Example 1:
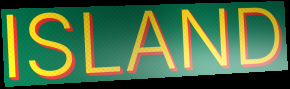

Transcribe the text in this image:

ISLAND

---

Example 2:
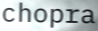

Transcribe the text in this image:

chopra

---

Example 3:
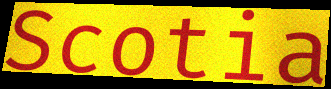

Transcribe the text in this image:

Scotia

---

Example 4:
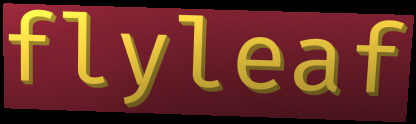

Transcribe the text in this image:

flyleaf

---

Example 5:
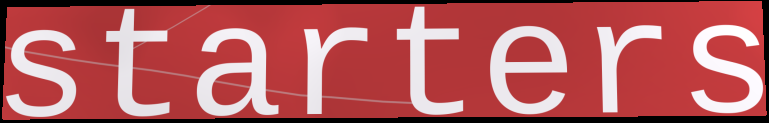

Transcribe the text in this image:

starters